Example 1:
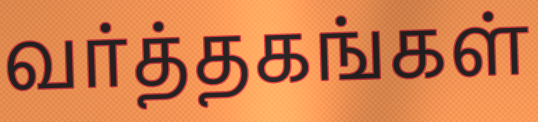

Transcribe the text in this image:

வர்த்தகங்கள்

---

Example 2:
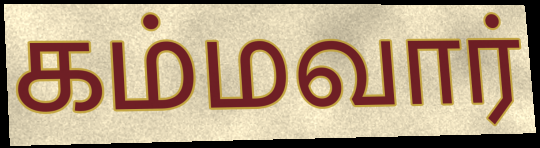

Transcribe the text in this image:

கம்மவார்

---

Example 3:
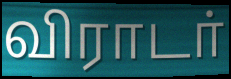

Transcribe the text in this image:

விராடர்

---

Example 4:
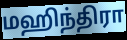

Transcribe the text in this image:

மஹிந்திரா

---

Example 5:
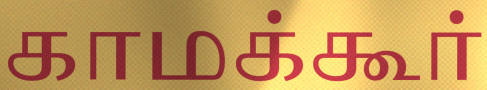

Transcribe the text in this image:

காமக்கூர்